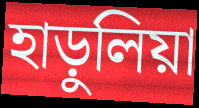
হাড়ুলিয়া